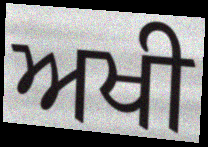
ਅਖੀ